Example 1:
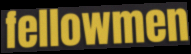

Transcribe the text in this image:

fellowmen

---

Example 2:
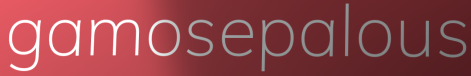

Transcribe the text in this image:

gamosepalous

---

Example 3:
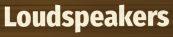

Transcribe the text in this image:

Loudspeakers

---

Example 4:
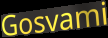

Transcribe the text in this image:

Gosvami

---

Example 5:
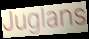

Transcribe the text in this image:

Juglans